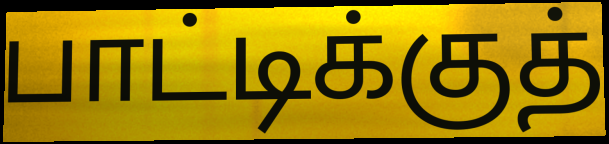
பாட்டிக்குத்